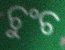
ଚୁଂଚ